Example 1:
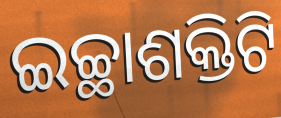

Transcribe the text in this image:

ଇଚ୍ଛାଶକ୍ତିଟି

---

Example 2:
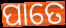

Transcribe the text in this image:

ପାତେ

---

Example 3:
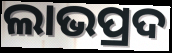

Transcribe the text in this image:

ଲାଭପ୍ରଦ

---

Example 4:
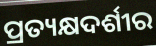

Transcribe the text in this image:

ପ୍ରତ୍ୟକ୍ଷଦର୍ଶୀର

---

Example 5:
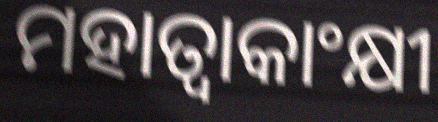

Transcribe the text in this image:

ମହାତ୍ୱାକାଂକ୍ଷୀ